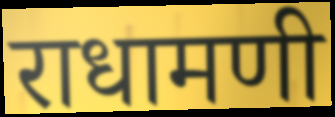
राधामणी